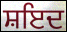
ਸ਼ਇਦ